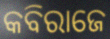
କବିରାଜେ